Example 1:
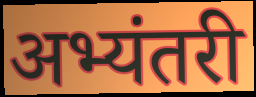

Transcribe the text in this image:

अभ्यंतरी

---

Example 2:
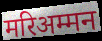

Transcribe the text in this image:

मरिअम्मन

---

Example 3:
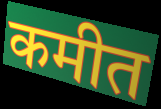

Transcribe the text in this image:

कमीत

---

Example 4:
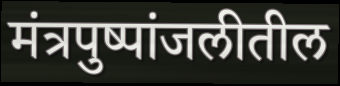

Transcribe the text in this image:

मंत्रपुष्पांजलीतील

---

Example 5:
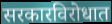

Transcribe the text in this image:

सरकारविरोधात